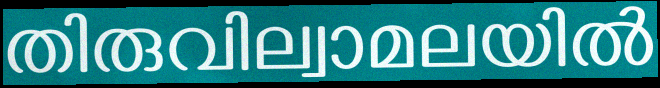
തിരുവില്വാമലയിൽ